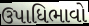
ઉપાધિભાવો